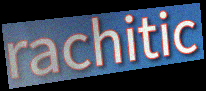
rachitic